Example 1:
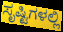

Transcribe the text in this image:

ಸೃಷ್ಟಿಗಳಲ್ಲಿ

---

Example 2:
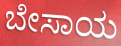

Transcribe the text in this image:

ಬೇಸಾಯ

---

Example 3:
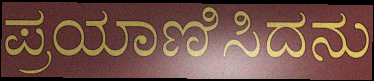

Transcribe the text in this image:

ಪ್ರಯಾಣಿಸಿದನು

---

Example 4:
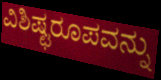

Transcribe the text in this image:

ವಿಶಿಷ್ಟರೂಪವನ್ನು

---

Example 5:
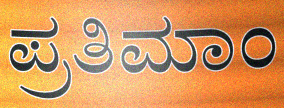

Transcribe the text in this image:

ಪ್ರತಿಮಾಂ